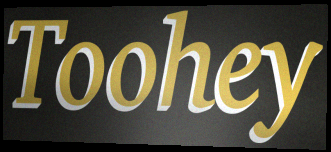
Toohey